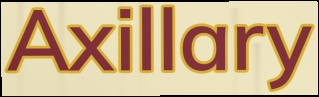
Axillary